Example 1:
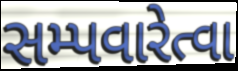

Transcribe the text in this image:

સમ્પવારેત્વા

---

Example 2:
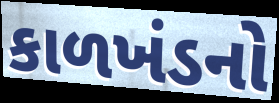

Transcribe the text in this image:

કાળખંડનો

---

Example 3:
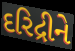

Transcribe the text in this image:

દરિદ્રીને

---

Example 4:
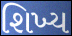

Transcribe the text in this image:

શિખ્ય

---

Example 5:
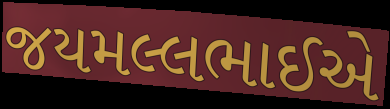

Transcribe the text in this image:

જયમલ્લભાઈએ